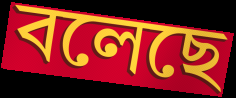
বলেছে